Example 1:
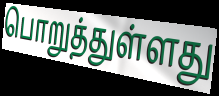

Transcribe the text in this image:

பொறுத்துள்ளது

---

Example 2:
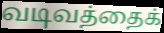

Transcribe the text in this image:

வடிவத்தைக்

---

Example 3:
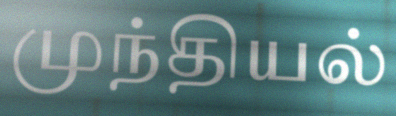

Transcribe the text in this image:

முந்தியல்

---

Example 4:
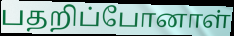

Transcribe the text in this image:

பதறிப்போனாள்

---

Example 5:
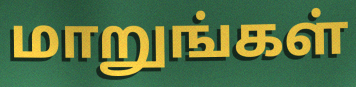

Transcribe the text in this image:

மாறுங்கள்